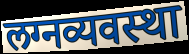
लग्नव्यवस्था